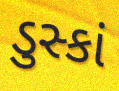
ડુસ્કાં